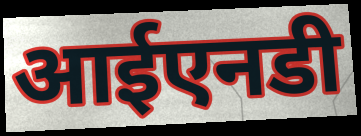
आईएनडी